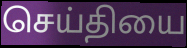
செய்தியை